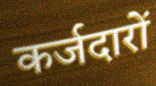
कर्जदारों